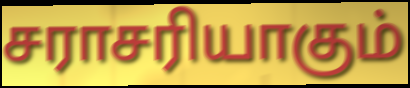
சராசரியாகும்